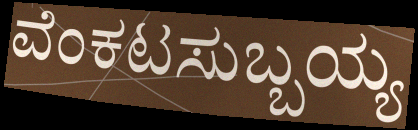
ವೆಂಕಟಸುಬ್ಬಯ್ಯ